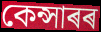
কেন্সাৰৰ